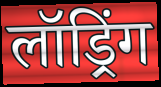
लॉड्रिंग